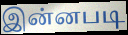
இன்னபடி